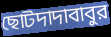
ছোটদাদাবাবুর